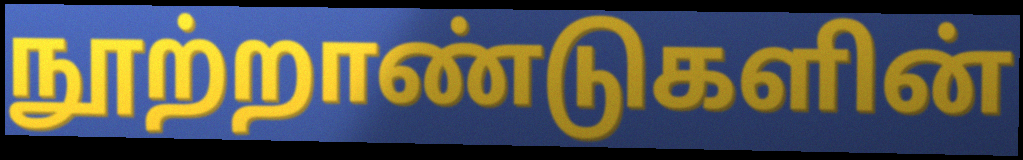
நூற்றாண்டுகளின்